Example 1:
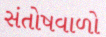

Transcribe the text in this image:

સંતોષવાળો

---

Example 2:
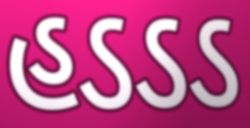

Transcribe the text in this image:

હડડડ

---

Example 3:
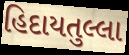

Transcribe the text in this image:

હિદાયતુલ્લા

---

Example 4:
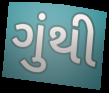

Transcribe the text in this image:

ગુંથી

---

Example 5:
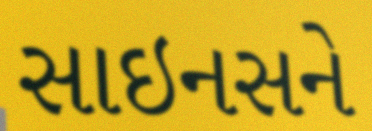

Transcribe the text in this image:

સાઇનસને